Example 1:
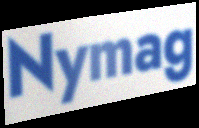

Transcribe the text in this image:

Nymag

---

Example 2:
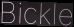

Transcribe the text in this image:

Bickle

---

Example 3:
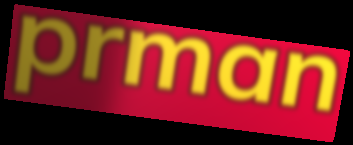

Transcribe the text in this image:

prman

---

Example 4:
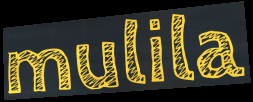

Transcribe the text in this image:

mulila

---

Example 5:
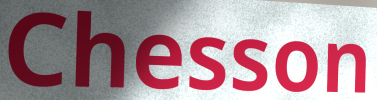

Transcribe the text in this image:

Chesson